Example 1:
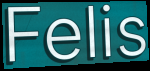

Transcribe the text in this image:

Felis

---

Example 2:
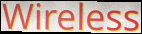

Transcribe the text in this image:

Wireless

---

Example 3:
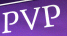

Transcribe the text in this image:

PVP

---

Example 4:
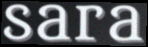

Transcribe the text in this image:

sara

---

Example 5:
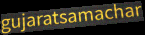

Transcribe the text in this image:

gujaratsamachar